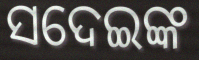
ସଦେଇଙ୍କ